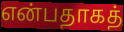
என்பதாகத்